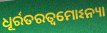
ଧୂର୍ରତରତ୍ୱମୋଽନ୍ୟା